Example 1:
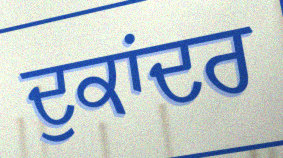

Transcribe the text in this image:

ਦੁਕਾਂਦਰ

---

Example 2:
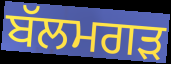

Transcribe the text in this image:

ਬੱਲਮਗੜ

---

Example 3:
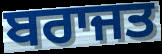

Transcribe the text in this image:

ਬਰਾਜਤ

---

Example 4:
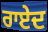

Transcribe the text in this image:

ਰਾਏਦ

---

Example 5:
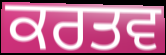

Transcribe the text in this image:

ਕਰਤਵ